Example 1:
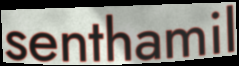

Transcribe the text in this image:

senthamil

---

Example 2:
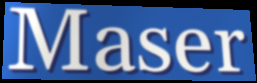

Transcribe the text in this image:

Maser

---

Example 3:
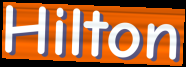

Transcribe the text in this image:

Hilton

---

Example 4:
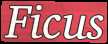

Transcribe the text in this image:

Ficus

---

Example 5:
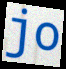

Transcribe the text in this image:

jo